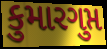
કુમારગુપ્ત